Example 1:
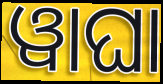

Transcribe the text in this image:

ୱାଘା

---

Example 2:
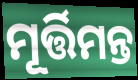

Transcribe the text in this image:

ମୂର୍ତ୍ତିମନ୍ତ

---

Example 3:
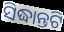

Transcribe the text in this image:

ସିଦ୍ଧାନ୍ତଟି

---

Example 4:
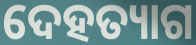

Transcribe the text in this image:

ଦେହତ୍ୟାଗ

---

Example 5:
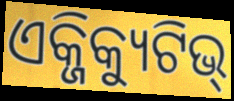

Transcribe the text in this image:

ଏକ୍ଜିକ୍ୟୁଟିଭ୍